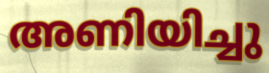
അണിയിച്ചു